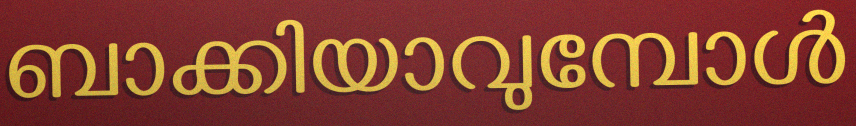
ബാക്കിയാവുമ്പോൾ